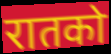
रातको